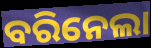
ବରିନେଲା